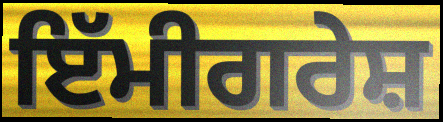
ਇੱਮੀਗਰੇਸ਼